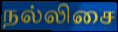
நல்லிசை